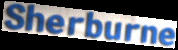
Sherburne